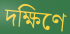
দক্ষিণে